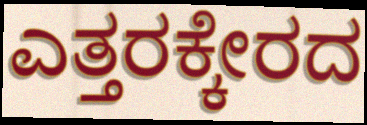
ಎತ್ತರಕ್ಕೇರದ